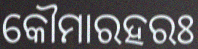
କୌମାରହରଃ